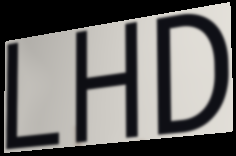
LHD